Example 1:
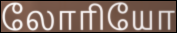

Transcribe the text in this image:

லோரியோ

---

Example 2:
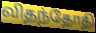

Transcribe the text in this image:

விதந்தோதி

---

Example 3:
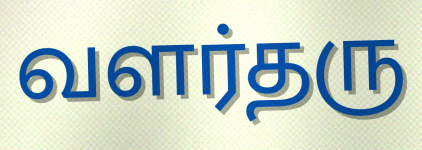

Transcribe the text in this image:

வளர்தரு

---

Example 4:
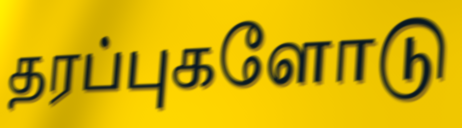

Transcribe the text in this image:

தரப்புகளோடு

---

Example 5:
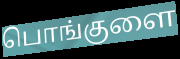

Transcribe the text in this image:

பொங்குளை